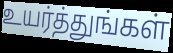
உயர்த்துங்கள்